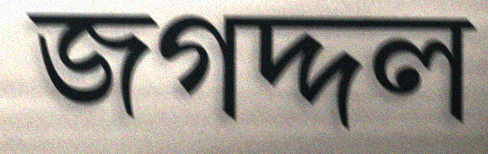
জগদ্দল